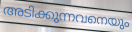
അടിക്കുന്നവനെയും